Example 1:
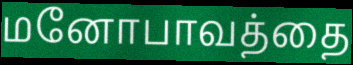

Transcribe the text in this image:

மனோபாவத்தை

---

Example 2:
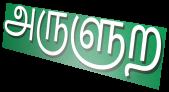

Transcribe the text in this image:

அருளுற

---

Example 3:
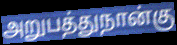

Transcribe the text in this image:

அறுபத்துநான்கு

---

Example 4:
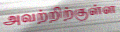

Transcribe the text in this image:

அவற்றிற்குள்ள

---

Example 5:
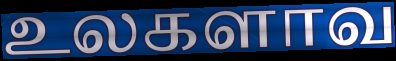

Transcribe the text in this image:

உலகளாவ